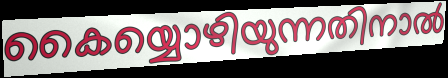
കൈയ്യൊഴിയുന്നതിനാൽ